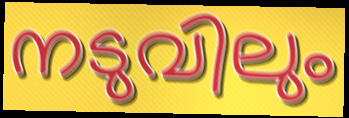
നടുവിലും